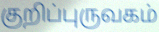
குறிப்புருவகம்